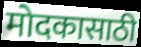
मोदकासाठी